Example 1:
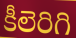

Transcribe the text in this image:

కీలెరిగి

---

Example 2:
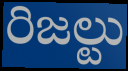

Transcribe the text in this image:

రిజల్టు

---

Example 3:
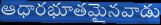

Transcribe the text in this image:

ఆధారభూతమైనవాడు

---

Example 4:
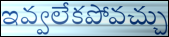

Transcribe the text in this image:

ఇవ్వలేకపోవచ్చు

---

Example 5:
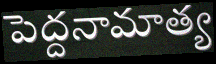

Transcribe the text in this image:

పెద్దనామాత్య